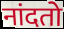
नांदतो